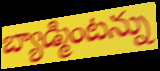
బ్యాడ్మింటన్ను